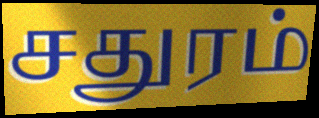
சதுரம்